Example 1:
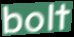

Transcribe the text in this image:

bolt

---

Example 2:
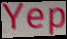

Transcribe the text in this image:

Yep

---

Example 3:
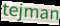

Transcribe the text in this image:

tejman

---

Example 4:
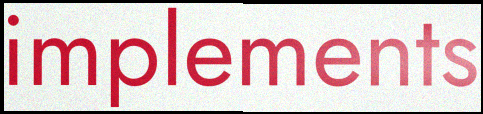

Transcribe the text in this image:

implements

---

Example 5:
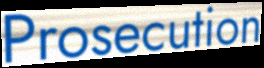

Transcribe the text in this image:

Prosecution